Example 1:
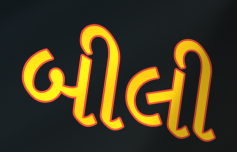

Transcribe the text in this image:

બીલી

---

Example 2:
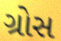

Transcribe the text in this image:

ગ્રોસ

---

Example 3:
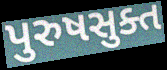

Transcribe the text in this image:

પુરુષસુક્ત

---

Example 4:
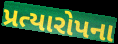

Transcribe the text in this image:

પ્રત્યારોપના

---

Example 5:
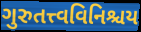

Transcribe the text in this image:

ગુરુતત્ત્વવિનિશ્ચય